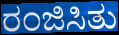
ರಂಜಿಸಿತು